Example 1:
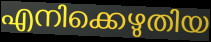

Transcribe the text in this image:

എനിക്കെഴുതിയ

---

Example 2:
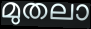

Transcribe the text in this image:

മുതലാ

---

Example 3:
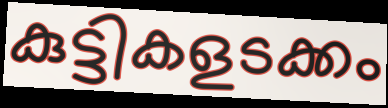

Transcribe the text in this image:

കുട്ടികളടക്കം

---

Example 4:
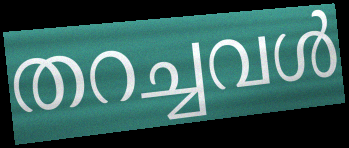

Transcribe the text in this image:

തറച്ചവൾ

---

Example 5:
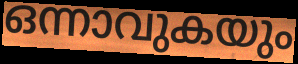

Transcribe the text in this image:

ഒന്നാവുകയും